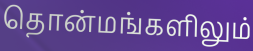
தொன்மங்களிலும்